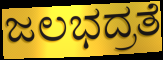
ಜಲಭದ್ರತೆ